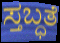
ಸ್ತಬ್ಧತೆ